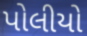
પોલીયો